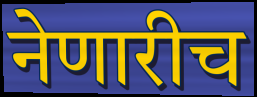
नेणारीच